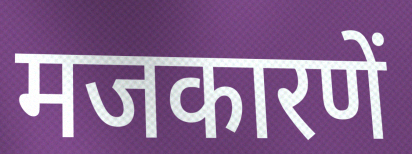
मजकारणें